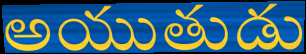
అయుతుడు